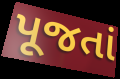
પૂજતાં